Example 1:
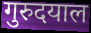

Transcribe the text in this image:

गुरुदयाल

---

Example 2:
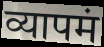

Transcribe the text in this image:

व्‍यापमं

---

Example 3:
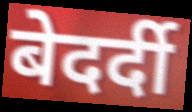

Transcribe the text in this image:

बेदर्दी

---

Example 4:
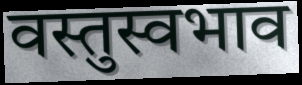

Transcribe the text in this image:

वस्तुस्वभाव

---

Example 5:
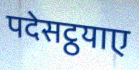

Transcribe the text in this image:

पदेसट्ठयाए